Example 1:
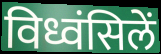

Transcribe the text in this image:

विध्वंसिलें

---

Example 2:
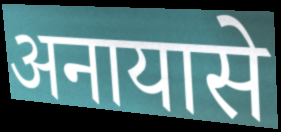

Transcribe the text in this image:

अनायासे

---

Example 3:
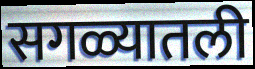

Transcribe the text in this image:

सगळ्यातली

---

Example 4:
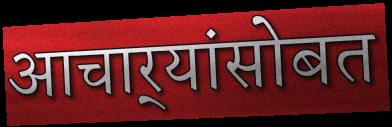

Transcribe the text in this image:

आचार्यांसोबत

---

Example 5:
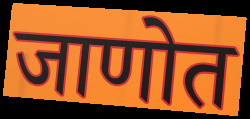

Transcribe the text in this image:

जाणोत